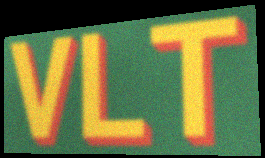
VLT